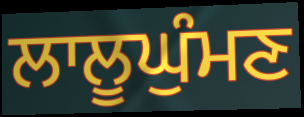
ਲਾਲੂਘੁੰਮਣ